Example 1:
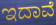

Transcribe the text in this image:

ಇದಾವೆ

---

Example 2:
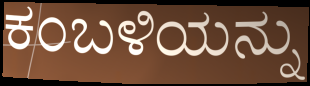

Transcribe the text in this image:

ಕಂಬಳಿಯನ್ನು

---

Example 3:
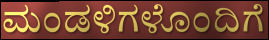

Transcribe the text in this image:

ಮಂಡಳಿಗಳೊಂದಿಗೆ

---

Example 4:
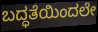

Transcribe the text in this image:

ಬದ್ಧತೆಯಿಂದಲೇ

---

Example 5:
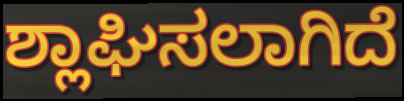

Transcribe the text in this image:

ಶ್ಲಾಘಿಸಲಾಗಿದೆ